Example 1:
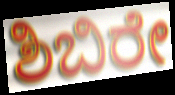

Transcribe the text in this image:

ಶಿಬಿರೇ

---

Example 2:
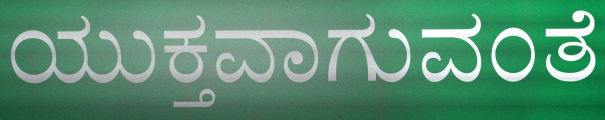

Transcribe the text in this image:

ಯುಕ್ತವಾಗುವಂತೆ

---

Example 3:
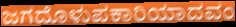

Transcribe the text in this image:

ಜಗದೊಳುಪಕಾರಿಯಾದವಂ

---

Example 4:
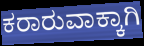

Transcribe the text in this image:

ಕರಾರುವಾಕ್ಕಾಗಿ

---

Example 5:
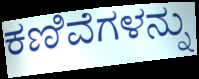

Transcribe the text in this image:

ಕಣಿವೆಗಳನ್ನು